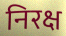
निरक्ष